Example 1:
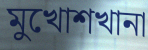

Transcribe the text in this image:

মুখোশখানা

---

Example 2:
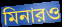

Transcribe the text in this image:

মিনারও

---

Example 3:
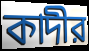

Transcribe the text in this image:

কাদীর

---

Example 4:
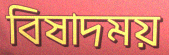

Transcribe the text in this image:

বিষাদময়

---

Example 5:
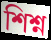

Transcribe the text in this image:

শিশ্ন